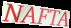
NAFTA